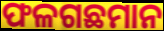
ଫଳଗଛମାନ